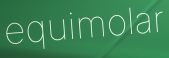
equimolar